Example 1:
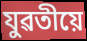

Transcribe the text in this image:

যুৱতীয়ে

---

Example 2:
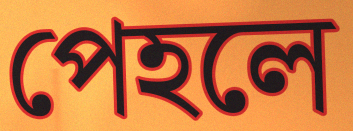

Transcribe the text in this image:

পেহলে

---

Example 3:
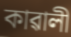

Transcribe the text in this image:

কাৱালী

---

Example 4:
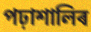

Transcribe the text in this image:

পঢ়াশালিৰ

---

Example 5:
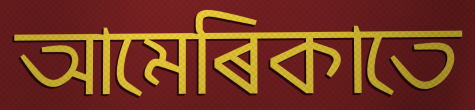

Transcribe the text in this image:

আমেৰিকাতে